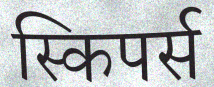
स्किपर्स